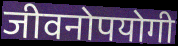
जीवनोपयोगी